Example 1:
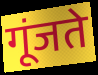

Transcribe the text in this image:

गूंजते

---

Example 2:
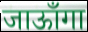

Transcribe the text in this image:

जाऊाँगा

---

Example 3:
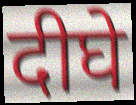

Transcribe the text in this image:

दीघे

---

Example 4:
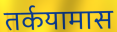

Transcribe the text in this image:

तर्कयामास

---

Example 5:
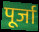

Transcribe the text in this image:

पूर्जा